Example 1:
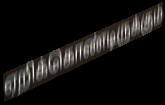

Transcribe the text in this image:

ஏறிக்கொண்டிருக்கும்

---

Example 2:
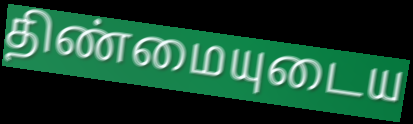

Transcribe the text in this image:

திண்மையுடைய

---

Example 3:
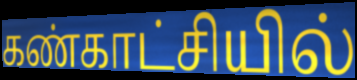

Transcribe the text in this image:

கண்காட்சியில்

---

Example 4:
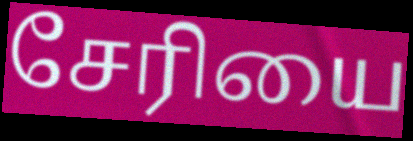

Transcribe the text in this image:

சேரியை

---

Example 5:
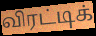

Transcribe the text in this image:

விரட்டிக்